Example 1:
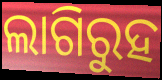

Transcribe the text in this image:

ଲାଗିରୁହ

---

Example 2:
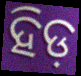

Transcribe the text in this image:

ହିଡ଼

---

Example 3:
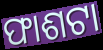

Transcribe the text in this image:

ଫାଶଟା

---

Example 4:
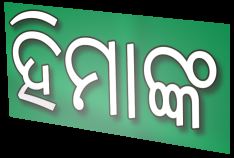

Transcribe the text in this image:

ହିମାଙ୍କ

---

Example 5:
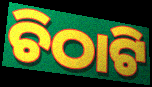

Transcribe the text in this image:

ଚିଠାଟି